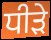
ਧੀੜੇ